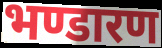
भण्डारण